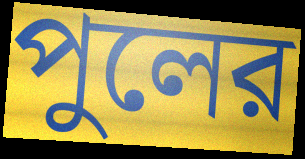
পুলের